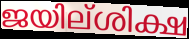
ജയില്ശിക്ഷ